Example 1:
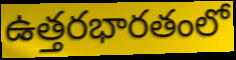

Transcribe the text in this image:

ఉత్తరభారతంలో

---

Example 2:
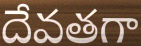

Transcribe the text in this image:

దేవతగా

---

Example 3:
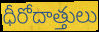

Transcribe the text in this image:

ధీరోదాత్తులు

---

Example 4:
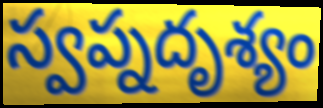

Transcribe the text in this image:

స్వప్నదృశ్యం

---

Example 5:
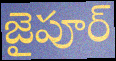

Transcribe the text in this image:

జైపూర్